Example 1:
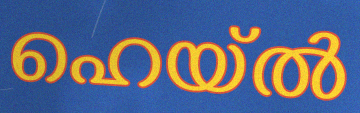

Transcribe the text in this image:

ഹെയ്ൽ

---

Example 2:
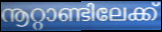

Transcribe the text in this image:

നൂറ്റാണ്ടിലേക്ക്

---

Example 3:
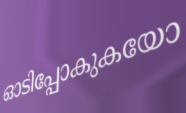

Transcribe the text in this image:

ഓടിപ്പോകുകയോ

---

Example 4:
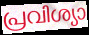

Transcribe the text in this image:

പ്രവിശ്യാ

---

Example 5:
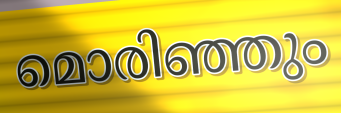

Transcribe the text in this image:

മൊരിഞ്ഞും